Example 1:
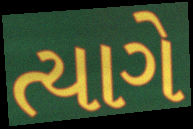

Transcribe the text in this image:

ત્યાગે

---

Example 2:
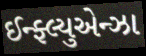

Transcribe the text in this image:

ઈન્ફ્લ્યુએન્ઝા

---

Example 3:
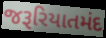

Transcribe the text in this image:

જરૂરિયાતમંદ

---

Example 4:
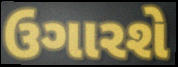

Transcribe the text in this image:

ઉગારશે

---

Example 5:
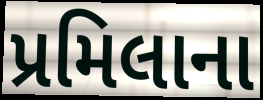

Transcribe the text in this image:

પ્રમિલાના